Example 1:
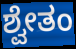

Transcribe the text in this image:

ಶ್ವೇತಂ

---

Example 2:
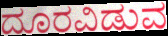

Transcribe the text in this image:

ದೂರವಿಡುವ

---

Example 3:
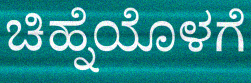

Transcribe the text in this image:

ಚಿಹ್ನೆಯೊಳಗೆ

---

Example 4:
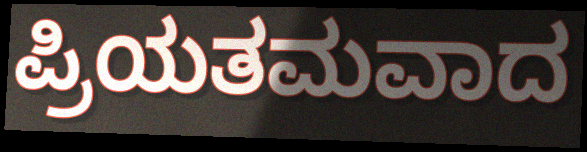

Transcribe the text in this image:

ಪ್ರಿಯತಮವಾದ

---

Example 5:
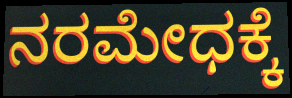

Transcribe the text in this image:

ನರಮೇಧಕ್ಕೆ